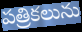
పత్రికలును